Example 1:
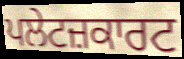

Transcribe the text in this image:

ਪਲੇਟਜ਼ਕਾਰਟ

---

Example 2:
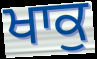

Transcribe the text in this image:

ਖਾਕੁ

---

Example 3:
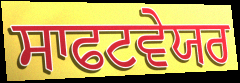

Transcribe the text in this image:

ਸਾਫਟਵੇਯਰ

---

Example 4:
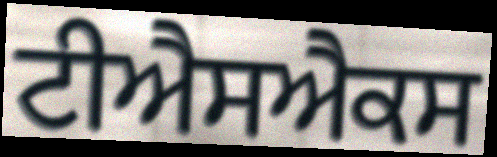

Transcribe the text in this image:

ਟੀਐਸਐਕਸ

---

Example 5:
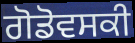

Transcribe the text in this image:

ਗੋਡੋਵਸਕੀ